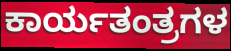
ಕಾರ್ಯತಂತ್ರಗಳ